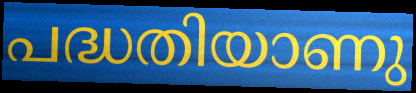
പദ്ധതിയാണു